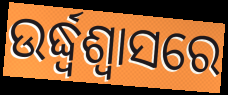
ଉର୍ଦ୍ଧ୍ଵଶ୍ୱାସରେ